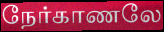
நேர்காணலே